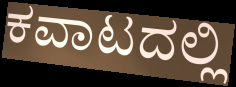
ಕವಾಟದಲ್ಲಿ